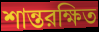
শান্তরক্ষিত